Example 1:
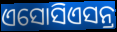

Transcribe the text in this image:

ଏସୋସିଏସନ୍ର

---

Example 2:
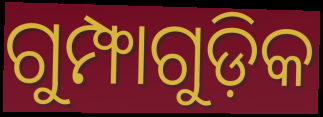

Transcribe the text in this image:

ଗୁମ୍ଫାଗୁଡ଼ିକ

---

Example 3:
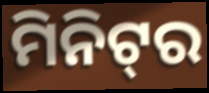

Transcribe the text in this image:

ମିନିଟ୍‌ର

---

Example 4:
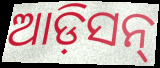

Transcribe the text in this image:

ଆଡ଼ିସନ୍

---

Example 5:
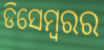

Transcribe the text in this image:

ଡିସେମ୍ୱରର